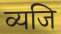
व्यजि